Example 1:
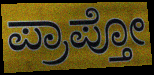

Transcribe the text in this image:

ಪ್ರಾಪ್ತೋ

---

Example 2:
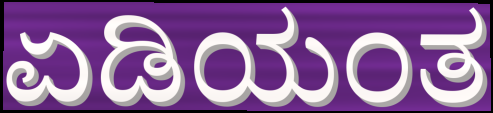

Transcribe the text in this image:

ಏಡಿಯಂತ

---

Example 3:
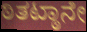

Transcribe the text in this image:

ಠಿತಟ್ಠಾನೇ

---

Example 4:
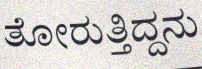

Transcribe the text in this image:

ತೋರುತ್ತಿದ್ದನು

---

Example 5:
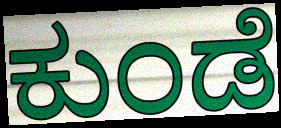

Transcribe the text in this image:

ಕುಂಡೆ